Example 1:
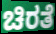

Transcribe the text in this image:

ಚಿರತೆ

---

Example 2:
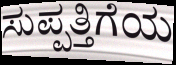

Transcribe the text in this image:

ಸುಪ್ಪತ್ತಿಗೆಯ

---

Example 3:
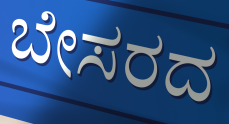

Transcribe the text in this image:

ಬೇಸರದ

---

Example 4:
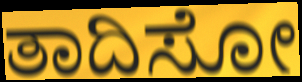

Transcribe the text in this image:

ತಾದಿಸೋ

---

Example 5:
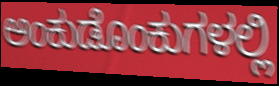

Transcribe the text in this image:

ಅಂಕುಡೊಂಕುಗಳಲ್ಲಿ